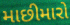
માછીમારો